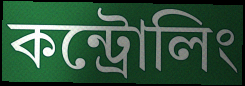
কন্ট্রোলিং